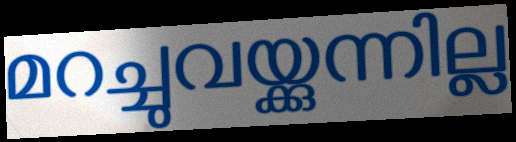
മറച്ചുവയ്ക്കുന്നില്ല